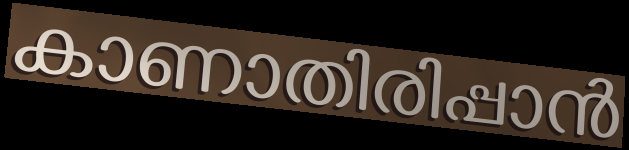
കാണാതിരിപ്പാൻ